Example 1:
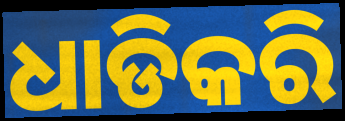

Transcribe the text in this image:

ଧାଡିକରି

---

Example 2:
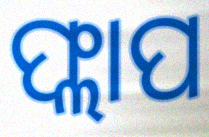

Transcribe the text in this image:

ଫ୍ଲାପ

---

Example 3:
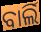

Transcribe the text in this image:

ବାର୍ଲି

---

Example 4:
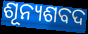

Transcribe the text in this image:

ଶୂନ୍ୟଶବଦ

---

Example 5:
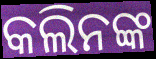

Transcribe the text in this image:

କଲିନଙ୍କ